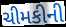
ચીમકીની